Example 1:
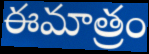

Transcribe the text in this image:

ఈమాత్రం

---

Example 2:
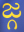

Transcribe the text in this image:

జ్గ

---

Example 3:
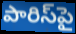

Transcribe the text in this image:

పారిస్‌పై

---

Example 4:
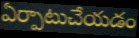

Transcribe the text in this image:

ఏర్పాటుచేయడం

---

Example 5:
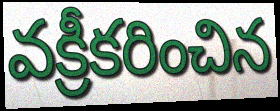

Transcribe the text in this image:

వక్రీకరించిన